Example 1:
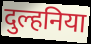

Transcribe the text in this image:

दुल्हनिया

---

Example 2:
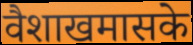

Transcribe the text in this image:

वैशाखमासके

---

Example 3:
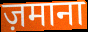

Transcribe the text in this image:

ज़माना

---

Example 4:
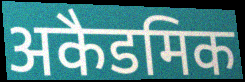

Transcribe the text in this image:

अकैडमिक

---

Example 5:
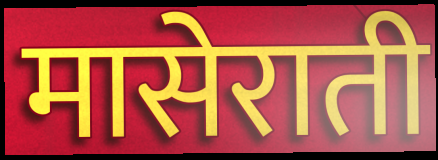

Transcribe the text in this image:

मासेराती